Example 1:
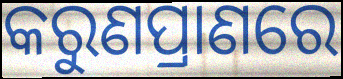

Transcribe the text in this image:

କରୁଣପ୍ରାଣରେ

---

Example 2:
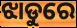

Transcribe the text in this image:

ଝାଡୁରେ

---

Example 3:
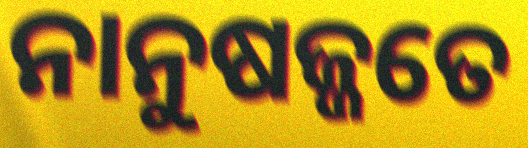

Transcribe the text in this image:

ନାନୁଷଜ୍ଜତେ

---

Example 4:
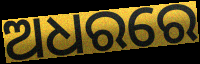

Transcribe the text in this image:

ଅଧରରେ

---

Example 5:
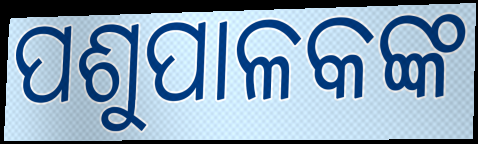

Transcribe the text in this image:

ପଶୁପାଳକଙ୍କ